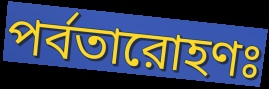
পর্বতারোহণঃ